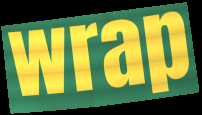
wrap